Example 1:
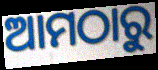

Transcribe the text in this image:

ଆମଠାରୁ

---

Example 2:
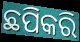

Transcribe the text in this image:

ଛପିକରି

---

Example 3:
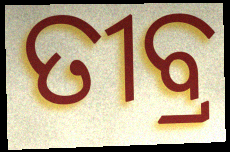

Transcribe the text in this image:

ତୀବ୍ର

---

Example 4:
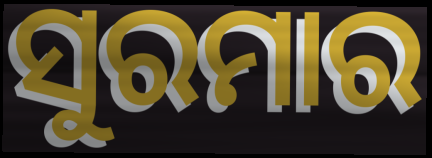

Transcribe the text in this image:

ସୁରମାର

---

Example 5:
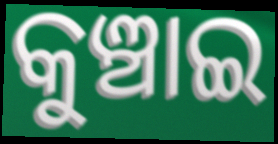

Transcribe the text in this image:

କୁଞ୍ଚାଇ